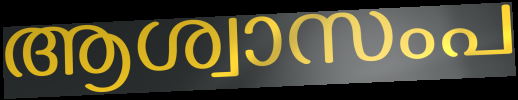
ആശ്വാസംപ